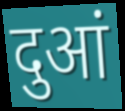
दुआं